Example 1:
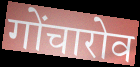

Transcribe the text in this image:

गोंचारोव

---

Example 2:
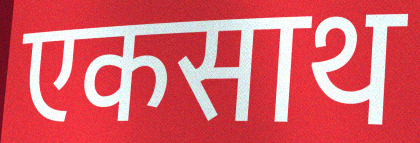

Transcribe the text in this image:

एकसाथ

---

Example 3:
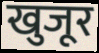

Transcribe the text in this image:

खुजूर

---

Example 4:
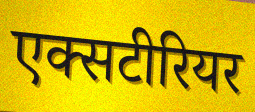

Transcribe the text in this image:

एक्सटीरियर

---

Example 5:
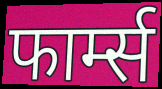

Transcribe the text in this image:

फार्म्स